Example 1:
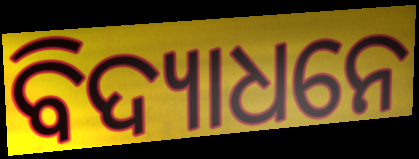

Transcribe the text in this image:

ବିଦ୍ୟାଧନେ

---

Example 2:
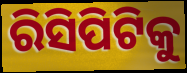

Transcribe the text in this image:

ରିସିପିଟିକୁ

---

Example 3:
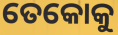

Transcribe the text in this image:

ତେକୋକୁ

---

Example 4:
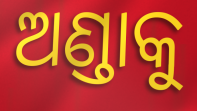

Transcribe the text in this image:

ଅଣ୍ଡାକୁ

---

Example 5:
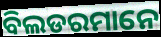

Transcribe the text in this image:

ବିଲଡରମାନେ